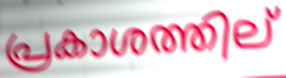
പ്രകാശത്തില്